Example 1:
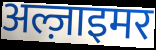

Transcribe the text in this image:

अल्ज़ाइमर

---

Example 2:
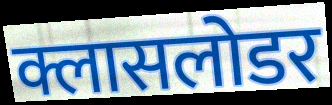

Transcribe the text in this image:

क्लासलोडर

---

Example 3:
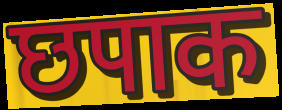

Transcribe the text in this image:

छपाक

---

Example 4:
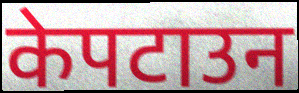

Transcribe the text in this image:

केपटाउन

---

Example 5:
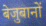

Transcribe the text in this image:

बेजुबानों